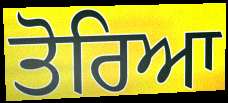
ਤੋਰਿਆ